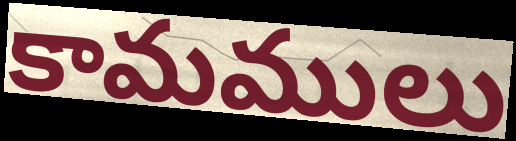
కామములు